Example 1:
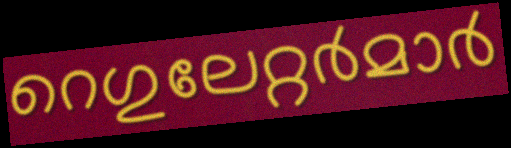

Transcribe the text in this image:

റെഗുലേറ്റർമാർ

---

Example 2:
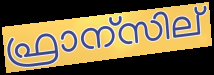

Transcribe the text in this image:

ഫ്രാന്സില്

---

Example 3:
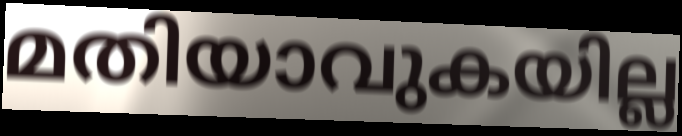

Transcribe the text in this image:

മതിയാവുകയില്ല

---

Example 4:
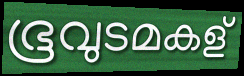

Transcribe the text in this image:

ഭൂവുടമകള്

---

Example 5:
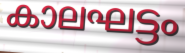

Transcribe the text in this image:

കാലഘട്ടം